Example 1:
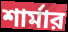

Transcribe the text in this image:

শার্মার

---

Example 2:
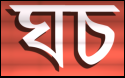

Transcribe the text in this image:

ঘচ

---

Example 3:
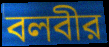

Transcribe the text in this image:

বলবীর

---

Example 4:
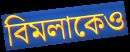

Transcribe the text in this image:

বিমলাকেও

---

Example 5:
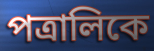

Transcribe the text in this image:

পত্রালিকে